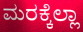
ಮರಕ್ಕೆಲ್ಲಾ